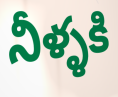
నీళ్ళకి